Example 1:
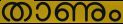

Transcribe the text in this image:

താണും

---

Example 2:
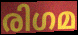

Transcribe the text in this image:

രിഗമ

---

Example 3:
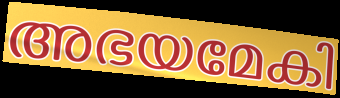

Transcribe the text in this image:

അഭയമേകി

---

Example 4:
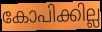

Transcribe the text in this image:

കോപിക്കില്ല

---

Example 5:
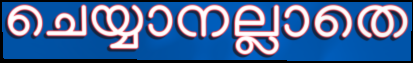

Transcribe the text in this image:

ചെയ്യാനല്ലാതെ